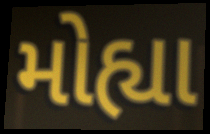
મોહ્યા